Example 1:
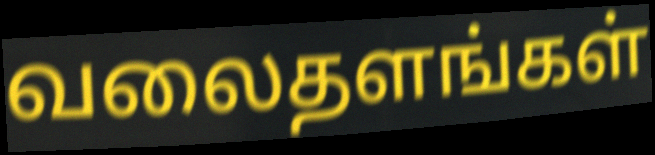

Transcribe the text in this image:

வலைதளங்கள்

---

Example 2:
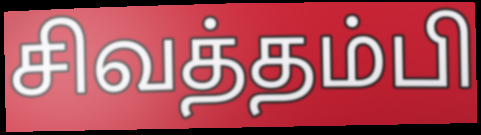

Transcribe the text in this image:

சிவத்தம்பி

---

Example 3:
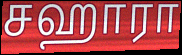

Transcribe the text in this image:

சஹாரா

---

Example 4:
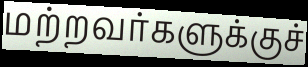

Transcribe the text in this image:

மற்றவர்களுக்குச்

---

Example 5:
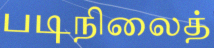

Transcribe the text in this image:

படிநிலைத்